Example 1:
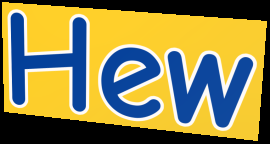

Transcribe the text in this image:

Hew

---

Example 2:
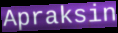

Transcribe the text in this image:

Apraksin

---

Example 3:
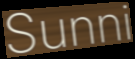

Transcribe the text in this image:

Sunni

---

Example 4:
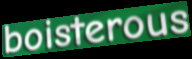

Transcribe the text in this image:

boisterous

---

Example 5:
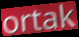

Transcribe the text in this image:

ortak